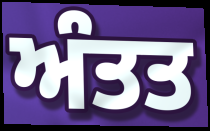
ਅੰਤਤ